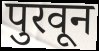
पुरवून